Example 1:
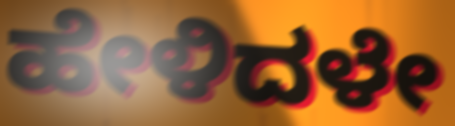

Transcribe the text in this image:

ಹೇಳಿದಳೇ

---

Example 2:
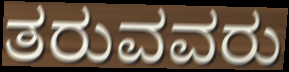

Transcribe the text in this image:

ತರುವವರು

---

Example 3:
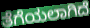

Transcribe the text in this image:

ತೆಗೆಯಲಾಗಿದೆ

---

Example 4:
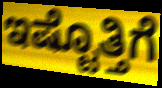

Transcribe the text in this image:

ಇಷ್ಟೊತ್ತಿಗೆ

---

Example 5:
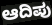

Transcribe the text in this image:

ಆದಿಪು